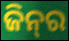
ଜିନ୍‍ର